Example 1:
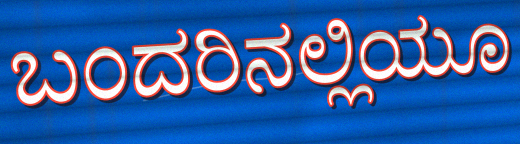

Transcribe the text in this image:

ಬಂದರಿನಲ್ಲಿಯೂ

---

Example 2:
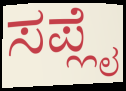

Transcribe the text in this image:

ಸಪ್ಲೈ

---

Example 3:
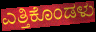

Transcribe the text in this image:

ಎತ್ತಿಕೊಂಡಳು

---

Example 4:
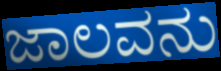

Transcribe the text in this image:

ಜಾಲವನು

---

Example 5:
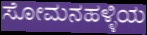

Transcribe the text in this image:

ಸೋಮನಹಳ್ಳಿಯ